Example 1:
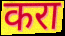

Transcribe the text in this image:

करा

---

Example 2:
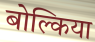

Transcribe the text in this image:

बोल्किया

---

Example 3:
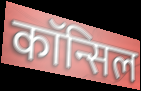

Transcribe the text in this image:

कॉन्सिल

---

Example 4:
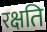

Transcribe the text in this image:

रक्षति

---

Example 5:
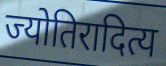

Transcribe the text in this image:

ज्योतिरादित्य